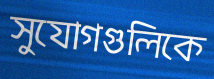
সুযোগগুলিকে